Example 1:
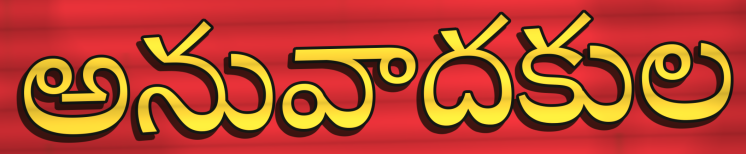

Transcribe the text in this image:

అనువాదకుల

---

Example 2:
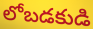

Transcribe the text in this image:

లోబడకుడి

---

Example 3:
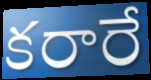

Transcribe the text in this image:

కరారే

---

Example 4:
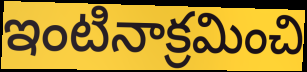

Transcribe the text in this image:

ఇంటినాక్రమించి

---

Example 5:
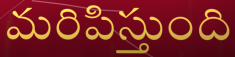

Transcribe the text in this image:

మరిపిస్తుంది